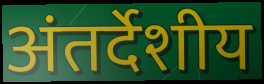
अंतर्देशीय